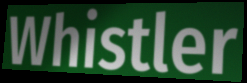
Whistler